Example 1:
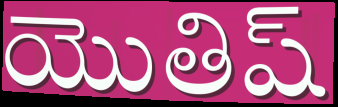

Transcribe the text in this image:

యొతిష్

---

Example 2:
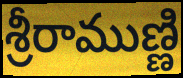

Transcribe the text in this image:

శ్రీరాముణ్ణి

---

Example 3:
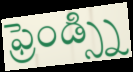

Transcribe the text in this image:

ఫ్రెండ్స్ని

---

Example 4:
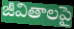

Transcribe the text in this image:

జీవితాలపై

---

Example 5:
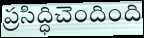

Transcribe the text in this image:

ప్రసిద్ధిచెందింది